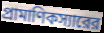
প্রামাণিকস্যারের